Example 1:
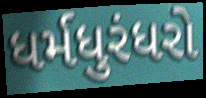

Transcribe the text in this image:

ધર્મધુરંધરો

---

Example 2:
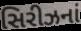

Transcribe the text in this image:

સિરીઝનાં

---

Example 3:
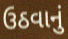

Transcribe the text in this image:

ઉઠવાનું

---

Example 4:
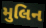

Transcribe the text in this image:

મુલિન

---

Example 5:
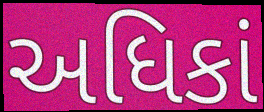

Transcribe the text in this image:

અધિકાં